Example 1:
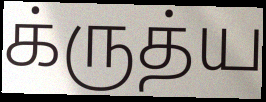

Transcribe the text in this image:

க்ருத்ய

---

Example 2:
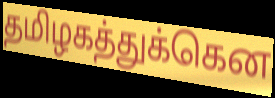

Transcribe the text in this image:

தமிழகத்துக்கென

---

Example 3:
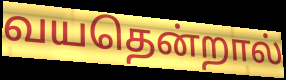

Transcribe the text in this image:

வயதென்றால்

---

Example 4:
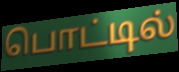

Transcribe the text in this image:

பொட்டில்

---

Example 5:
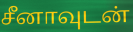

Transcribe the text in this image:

சீனாவுடன்